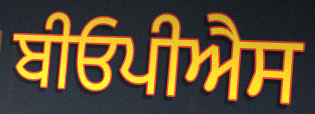
ਬੀਓਪੀਐਸ